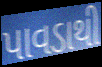
પાવડાથી